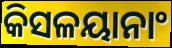
କିସଳୟାନାଂ